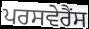
ਪਰਸਵੇਰੈਂਸ